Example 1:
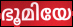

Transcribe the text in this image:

ഭൂമിയേ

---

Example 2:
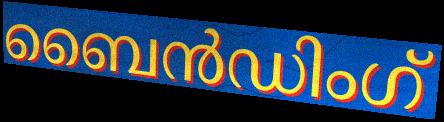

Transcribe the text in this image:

ബൈൻഡിംഗ്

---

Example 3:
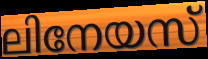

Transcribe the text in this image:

ലിനേയസ്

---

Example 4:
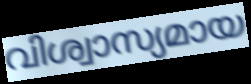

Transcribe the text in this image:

വിശ്വാസ്യമായ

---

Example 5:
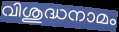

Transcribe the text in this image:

വിശുദ്ധനാമം